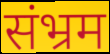
संभ्रम